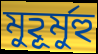
মুহূর্মুহু